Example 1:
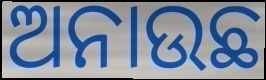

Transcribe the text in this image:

ଅନାଉଛ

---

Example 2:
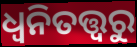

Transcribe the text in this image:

ଧ୍ୱନିତତ୍ତ୍ୱରୁ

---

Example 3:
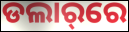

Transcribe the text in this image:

ଡଲାର୍‌ରେ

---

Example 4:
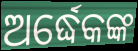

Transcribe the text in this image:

ଅର୍ଦ୍ଧେକଙ୍କ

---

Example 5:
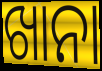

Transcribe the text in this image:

ଖାନା